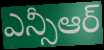
ఎన్సీఆర్